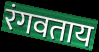
रंगवताय